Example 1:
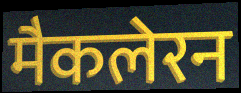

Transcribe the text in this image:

मैकलेरन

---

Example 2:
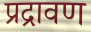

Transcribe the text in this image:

प्रद्रावण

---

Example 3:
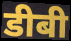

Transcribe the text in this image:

डीबी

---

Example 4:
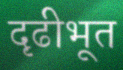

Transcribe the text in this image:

दृढीभूत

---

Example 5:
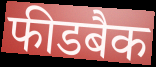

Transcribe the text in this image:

फीडबैक